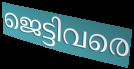
ജെട്ടിവരെ